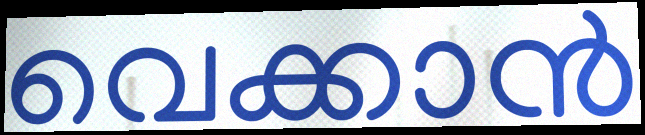
വെക്കാൻ